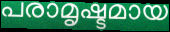
പരാമൃഷ്ടമായ